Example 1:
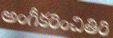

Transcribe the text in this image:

అంగీకరించితిరి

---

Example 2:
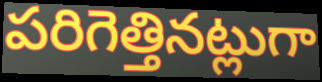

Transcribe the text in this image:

పరిగెత్తినట్లుగా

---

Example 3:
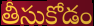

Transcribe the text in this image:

తీసుకోడం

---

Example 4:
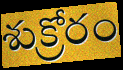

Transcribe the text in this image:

శుక్రోరం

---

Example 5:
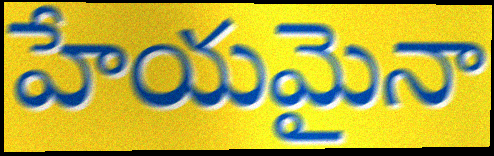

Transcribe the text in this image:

హేయమైనా